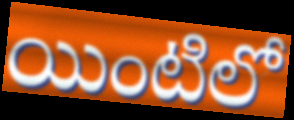
యింటిలో